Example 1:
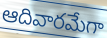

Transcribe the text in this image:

ఆదివారమేగా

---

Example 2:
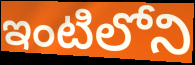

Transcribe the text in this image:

ఇంటిలోని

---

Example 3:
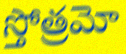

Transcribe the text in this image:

స్తోత్రమో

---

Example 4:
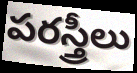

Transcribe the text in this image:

పరస్త్రీలు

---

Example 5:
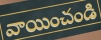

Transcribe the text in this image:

వాయించండి